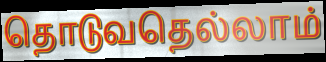
தொடுவதெல்லாம்